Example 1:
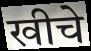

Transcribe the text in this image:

खीचे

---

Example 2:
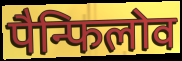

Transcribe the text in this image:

पैन्फिलोव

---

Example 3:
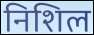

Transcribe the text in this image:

निशिल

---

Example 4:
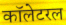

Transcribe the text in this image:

कॉलेटरल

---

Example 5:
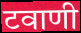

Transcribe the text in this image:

टवाणी